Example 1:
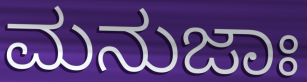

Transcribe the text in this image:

ಮನುಜಾಃ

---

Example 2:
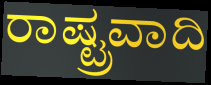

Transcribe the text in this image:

ರಾಷ್ಟ್ರವಾದಿ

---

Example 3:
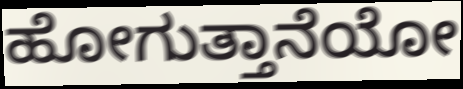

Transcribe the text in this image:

ಹೋಗುತ್ತಾನೆಯೋ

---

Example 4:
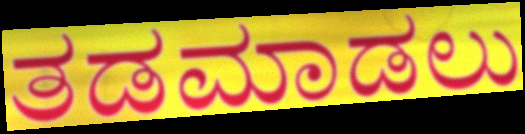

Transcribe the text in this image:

ತಡಮಾಡಲು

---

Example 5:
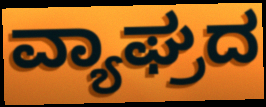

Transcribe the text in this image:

ವ್ಯಾಘ್ರದ